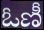
ఓణీ